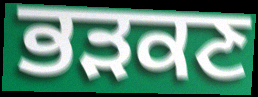
ਭੜਕਣ